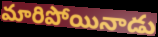
మారిపోయినాడు